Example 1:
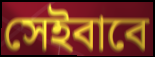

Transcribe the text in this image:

সেইবাবে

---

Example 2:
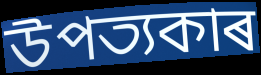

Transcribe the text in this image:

উপত্যকাৰ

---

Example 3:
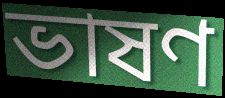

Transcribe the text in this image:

ভাষণ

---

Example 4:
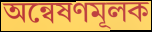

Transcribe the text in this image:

অন্বেষণমূলক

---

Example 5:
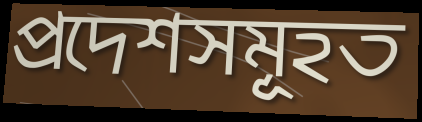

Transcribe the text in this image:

প্ৰদেশসমূহত